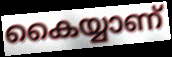
കൈയ്യാണ്